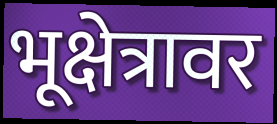
भूक्षेत्रावर